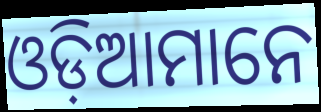
ଓଡ଼ିଆମାନେ